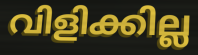
വിളിക്കില്ല